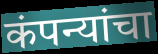
कंपन्यांचा